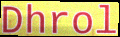
Dhrol